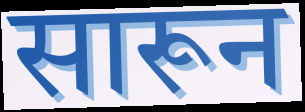
सारून